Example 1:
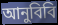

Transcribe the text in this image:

আনুবিবি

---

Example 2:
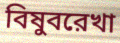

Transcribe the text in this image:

বিষুবরেখা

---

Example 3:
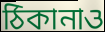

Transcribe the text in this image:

ঠিকানাও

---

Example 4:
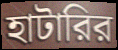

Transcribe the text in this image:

হাটারির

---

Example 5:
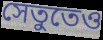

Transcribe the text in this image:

সেতুতেও